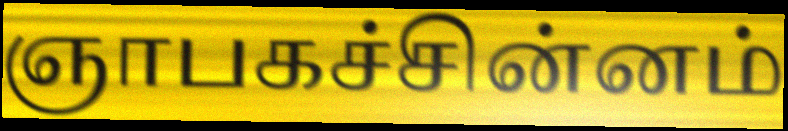
ஞாபகச்சின்னம்